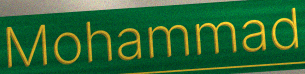
Mohammad